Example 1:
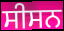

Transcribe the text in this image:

ਸੀਸਨ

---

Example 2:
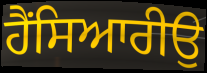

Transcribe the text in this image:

ਹੈਂਸਿਆਰੀਉ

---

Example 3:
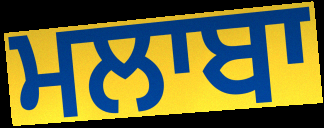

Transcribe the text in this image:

ਮਲਾਬਾ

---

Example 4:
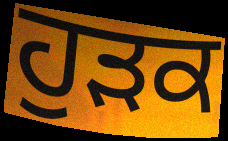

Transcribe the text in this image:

ਹੁੜਕ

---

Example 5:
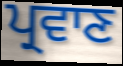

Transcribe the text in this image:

ਪ੍ਰਵਾਣ